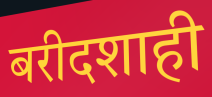
बरीदशाही